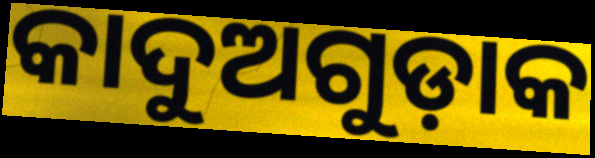
କାଦୁଅଗୁଡ଼ାକ